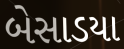
બેસાડયા